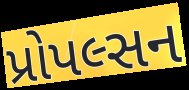
પ્રોપલ્સન